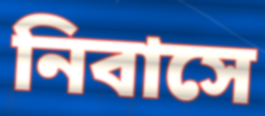
নিবাসে